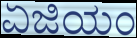
ಏಜಿಯಂ